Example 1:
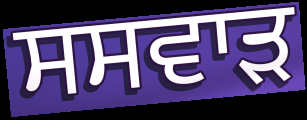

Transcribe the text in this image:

ਸਸਵਾੜ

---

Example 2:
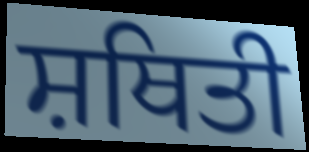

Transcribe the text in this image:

ਸ਼ਥਿਤੀ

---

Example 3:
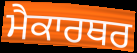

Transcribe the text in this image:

ਮੈਕਾਰਥਰ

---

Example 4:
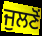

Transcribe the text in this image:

ਜੁਲਣੋਂ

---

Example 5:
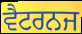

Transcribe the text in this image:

ਵੈਟਰਨਜ